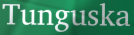
Tunguska